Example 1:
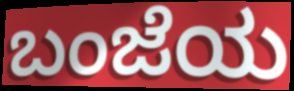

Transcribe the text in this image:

ಬಂಜೆಯ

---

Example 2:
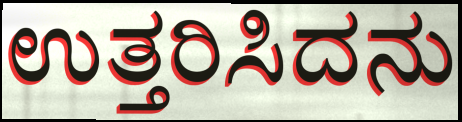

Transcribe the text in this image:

ಉತ್ತರಿಸಿದನು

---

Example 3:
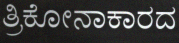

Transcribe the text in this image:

ತ್ರಿಕೋನಾಕಾರದ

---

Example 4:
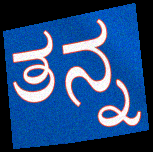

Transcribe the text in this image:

ತನ್ನ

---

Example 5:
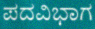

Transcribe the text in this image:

ಪದವಿಭಾಗ